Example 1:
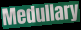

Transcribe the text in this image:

Medullary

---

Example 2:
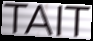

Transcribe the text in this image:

TAIT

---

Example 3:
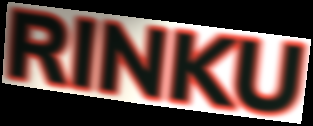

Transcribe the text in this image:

RINKU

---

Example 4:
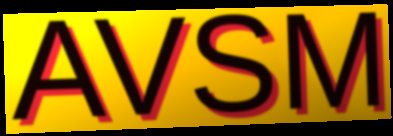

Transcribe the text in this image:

AVSM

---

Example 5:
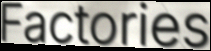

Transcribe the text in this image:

Factories